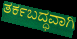
ತರ್ಕಬದ್ಧವಾಗಿ